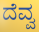
ದೆವ್ವ